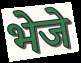
भेजे